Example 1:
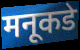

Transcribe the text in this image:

मनूकडे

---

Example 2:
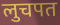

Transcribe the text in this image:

लुचपत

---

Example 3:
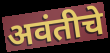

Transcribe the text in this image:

अवंतीचे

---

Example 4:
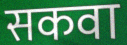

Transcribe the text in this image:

सकवा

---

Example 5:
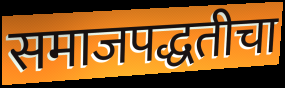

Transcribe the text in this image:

समाजपद्धतीचा